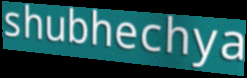
shubhechya